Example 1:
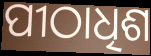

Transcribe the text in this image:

ପୀଠାଧିଶ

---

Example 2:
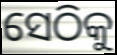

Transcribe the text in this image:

ସେଠିକୁ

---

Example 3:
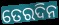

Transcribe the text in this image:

ତେରଦିନ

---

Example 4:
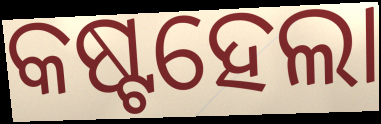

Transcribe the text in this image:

କଷ୍ଟହେଲା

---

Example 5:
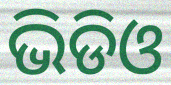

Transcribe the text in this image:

ଭିଡିଓ